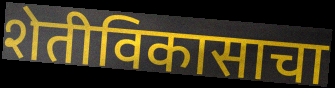
शेतीविकासाचा